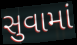
સુવામાં